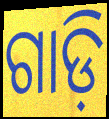
ଗାଡ଼ି